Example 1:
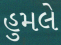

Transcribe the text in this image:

હુમલે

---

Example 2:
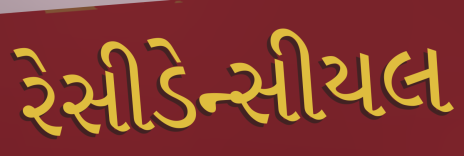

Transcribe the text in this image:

રેસીડેન્સીયલ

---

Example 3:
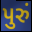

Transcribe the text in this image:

પુરું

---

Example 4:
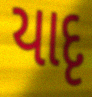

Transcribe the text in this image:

યાદૃ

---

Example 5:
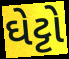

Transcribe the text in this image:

ઘેટ્ટો